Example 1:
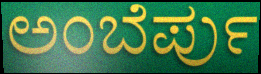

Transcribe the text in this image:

ಅಂಬೆರ್ಪು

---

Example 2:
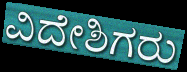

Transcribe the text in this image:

ವಿದೇಶಿಗರು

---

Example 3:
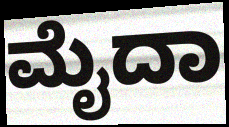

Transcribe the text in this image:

ಮೈದಾ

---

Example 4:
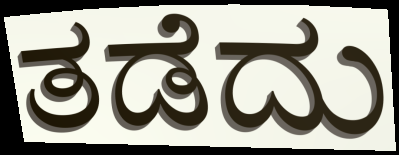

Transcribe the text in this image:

ತಡೆದು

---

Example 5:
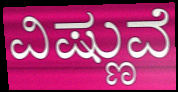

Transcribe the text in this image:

ವಿಷ್ಣುವೆ